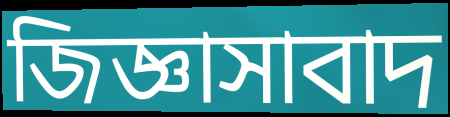
জিজ্ঞাসাবাদ